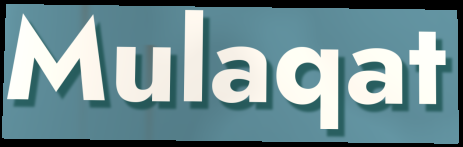
Mulaqat